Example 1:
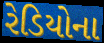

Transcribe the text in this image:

રેડિયોના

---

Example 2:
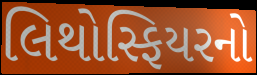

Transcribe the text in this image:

લિથોસ્ફિયરનો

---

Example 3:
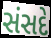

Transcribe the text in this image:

સંસદે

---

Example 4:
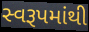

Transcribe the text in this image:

સ્વરૂપમાંથી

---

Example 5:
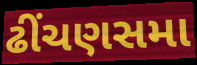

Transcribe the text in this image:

ઢીંચણસમા